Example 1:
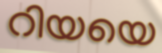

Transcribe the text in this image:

റിയയെ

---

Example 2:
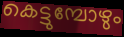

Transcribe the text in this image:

കെട്ടുമ്പോഴും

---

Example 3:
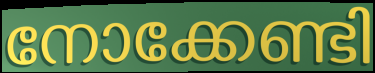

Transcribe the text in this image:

നോക്കേണ്ടി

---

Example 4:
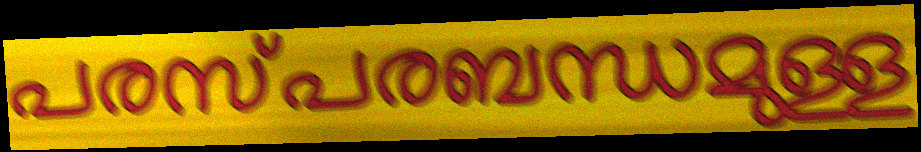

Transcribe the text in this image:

പരസ്പരബന്ധമുള്ള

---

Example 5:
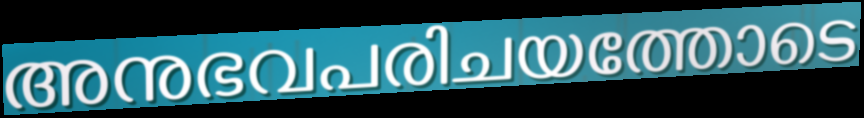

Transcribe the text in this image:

അനുഭവപരിചയത്തോടെ